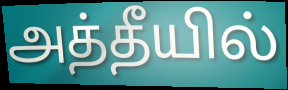
அத்தீயில்